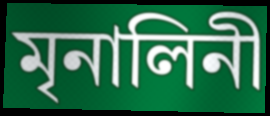
মৃনালিনী